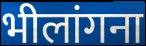
भीलांगना